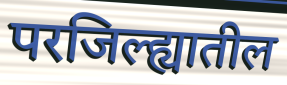
परजिल्ह्यातील